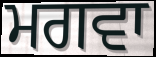
ਮਗਵਾ